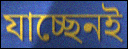
যাচ্ছেনই